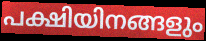
പക്ഷിയിനങ്ങളും